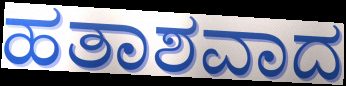
ಹತಾಶವಾದ